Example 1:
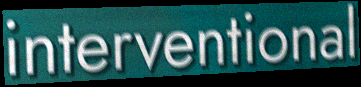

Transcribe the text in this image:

interventional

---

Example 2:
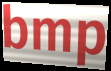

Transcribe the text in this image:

bmp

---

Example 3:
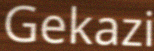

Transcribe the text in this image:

Gekazi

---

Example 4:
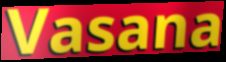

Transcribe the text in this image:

Vasana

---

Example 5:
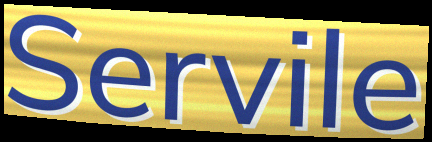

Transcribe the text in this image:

Servile